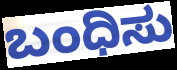
ಬಂಧಿಸು